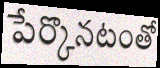
పేర్కొనటంతో